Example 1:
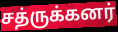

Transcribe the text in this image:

சத்ருக்கனர்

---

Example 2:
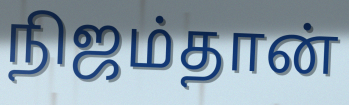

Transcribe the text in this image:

நிஜம்தான்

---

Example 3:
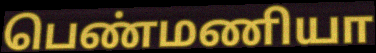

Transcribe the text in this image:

பெண்மணியா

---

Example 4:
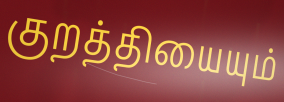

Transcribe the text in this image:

குறத்தியையும்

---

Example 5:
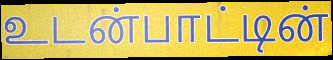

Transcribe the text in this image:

உடன்பாட்டின்